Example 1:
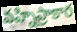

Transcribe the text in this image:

వహ్నిప్రాకార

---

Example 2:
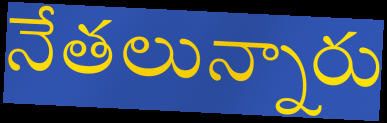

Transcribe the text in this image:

నేతలున్నారు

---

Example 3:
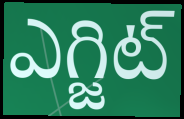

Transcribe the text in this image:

ఎగ్జిట్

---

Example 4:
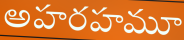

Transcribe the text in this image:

అహరహమూ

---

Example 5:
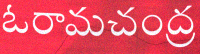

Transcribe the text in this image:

ఓరామచంద్ర